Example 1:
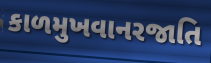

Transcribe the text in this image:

કાળમુખવાનરજાતિ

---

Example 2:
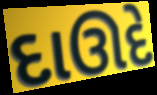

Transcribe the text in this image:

દાઊદે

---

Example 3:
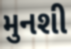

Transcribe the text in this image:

મુનશી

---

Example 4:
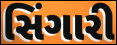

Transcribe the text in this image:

સિંગારી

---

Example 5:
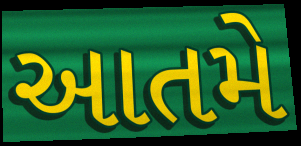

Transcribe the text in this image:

આતમે